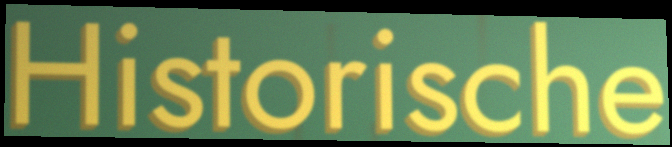
Historische